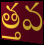
త్తవ